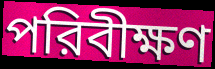
পরিবীক্ষণ